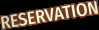
RESERVATION